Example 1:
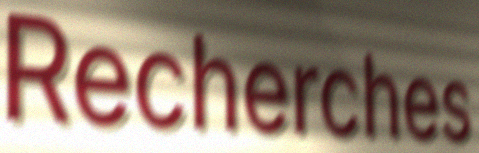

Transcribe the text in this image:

Recherches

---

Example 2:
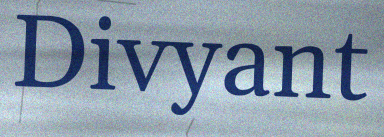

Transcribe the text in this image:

Divyant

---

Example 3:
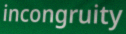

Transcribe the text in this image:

incongruity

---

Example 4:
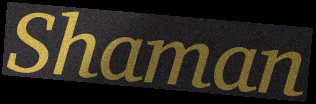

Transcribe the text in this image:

Shaman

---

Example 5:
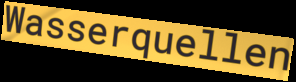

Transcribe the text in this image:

Wasserquellen